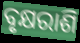
ବୃକ୍ଷରାଶି